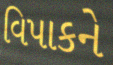
વિપાકને